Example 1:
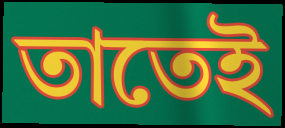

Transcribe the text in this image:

তাতেই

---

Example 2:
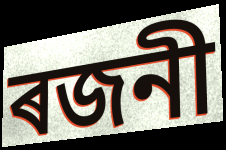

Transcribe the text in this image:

ৰজনী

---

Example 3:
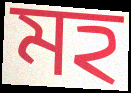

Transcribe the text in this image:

মহ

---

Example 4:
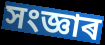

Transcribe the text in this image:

সংজ্ঞাৰ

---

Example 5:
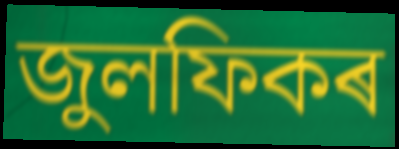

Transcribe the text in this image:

জুলফিকৰ